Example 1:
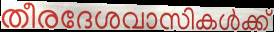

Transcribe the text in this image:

തീരദേശവാസികൾക്ക്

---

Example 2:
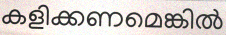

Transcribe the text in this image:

കളിക്കണമെങ്കിൽ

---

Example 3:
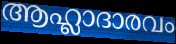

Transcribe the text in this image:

ആഹ്ലാദാരവം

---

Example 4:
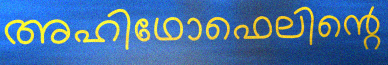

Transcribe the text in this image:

അഹിഥോഫെലിന്റെ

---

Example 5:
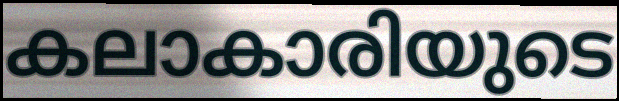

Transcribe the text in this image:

കലാകാരിയുടെ